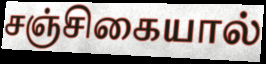
சஞ்சிகையால்